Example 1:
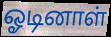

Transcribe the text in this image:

ஓடினாள்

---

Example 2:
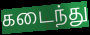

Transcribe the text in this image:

கடைந்து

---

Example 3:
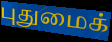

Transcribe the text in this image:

புதுமைக்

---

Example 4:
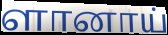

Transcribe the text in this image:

ளானாய்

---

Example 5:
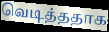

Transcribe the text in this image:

வெடித்ததாக